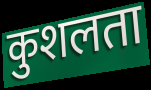
कुशलता